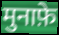
मुनाफ़े